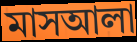
মাসআলা